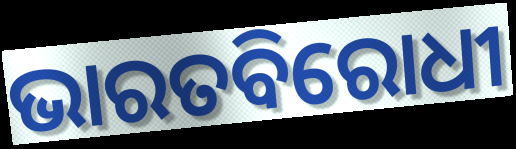
ଭାରତବିରୋଧୀ